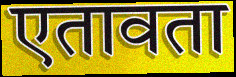
एतावता